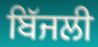
ਬਿੱਜਲੀ